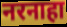
नरनाहा